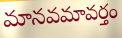
మానవమావర్తం